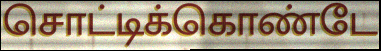
சொட்டிக்கொண்டே